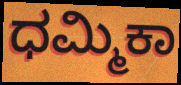
ಧಮ್ಮಿಕಾ